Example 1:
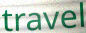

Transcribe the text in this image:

travel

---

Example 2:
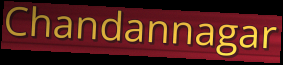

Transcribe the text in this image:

Chandannagar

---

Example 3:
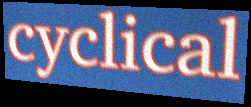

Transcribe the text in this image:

cyclical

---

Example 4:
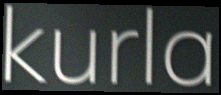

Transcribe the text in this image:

kurla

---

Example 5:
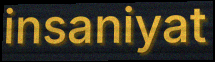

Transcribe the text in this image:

insaniyat